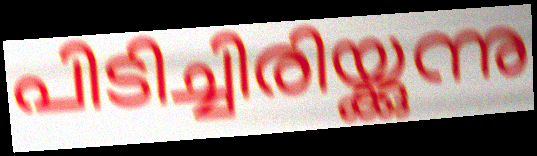
പിടിച്ചിരിയ്ക്കുന്നു